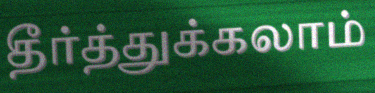
தீர்த்துக்கலாம்